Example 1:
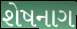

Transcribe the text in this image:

શેષનાગ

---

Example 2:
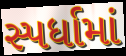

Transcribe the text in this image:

સ્પર્ધામાં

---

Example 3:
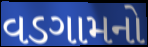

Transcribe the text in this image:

વડગામનો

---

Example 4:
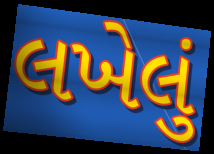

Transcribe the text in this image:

લખેલું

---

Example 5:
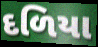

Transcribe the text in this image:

દળિયા